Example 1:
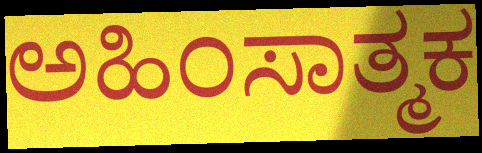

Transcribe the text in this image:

ಅಹಿಂಸಾತ್ಮಕ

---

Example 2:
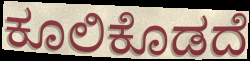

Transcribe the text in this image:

ಕೂಲಿಕೊಡದೆ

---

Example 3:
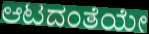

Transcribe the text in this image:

ಆಟದಂತೆಯೇ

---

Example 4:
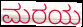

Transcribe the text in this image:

ಮರಯ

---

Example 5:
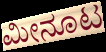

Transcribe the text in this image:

ಮೀನೂಟ